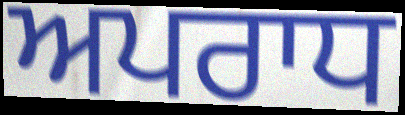
ਅਪਰਾਧ